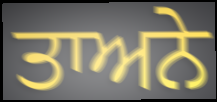
ਤਾਅਨੇ